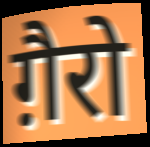
ग़ैरो